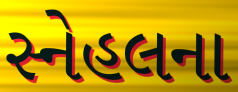
સ્નેહલના